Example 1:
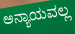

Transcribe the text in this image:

ಅನ್ಯಾಯವಲ್ಲ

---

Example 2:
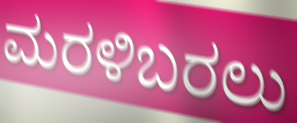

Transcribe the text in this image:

ಮರಳಿಬರಲು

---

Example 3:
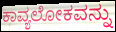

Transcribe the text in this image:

ಕಾವ್ಯಲೋಕವನ್ನು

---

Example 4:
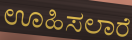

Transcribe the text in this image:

ಊಹಿಸಲಾರೆ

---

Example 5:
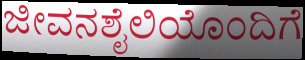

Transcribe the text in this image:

ಜೀವನಶೈಲಿಯೊಂದಿಗೆ